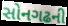
સોનગઢની